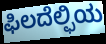
ಫಿಲದೆಲ್ಫಿಯ